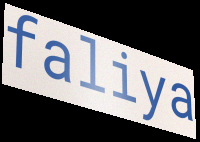
faliya